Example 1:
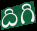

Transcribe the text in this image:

దిగి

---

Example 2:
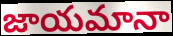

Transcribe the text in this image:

జాయమానా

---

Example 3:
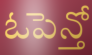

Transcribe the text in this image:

ఓపెన్తో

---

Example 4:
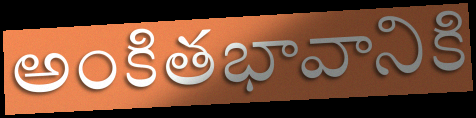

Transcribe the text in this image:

అంకితభావానికి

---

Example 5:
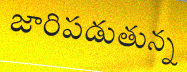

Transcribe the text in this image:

జారిపడుతున్న